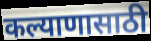
कल्याणासाठी